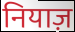
नियाज़